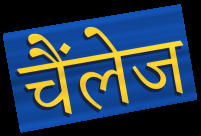
चैंलेज